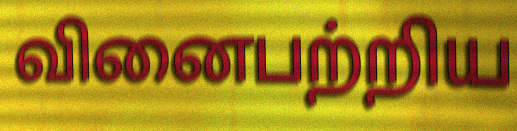
வினைபற்றிய